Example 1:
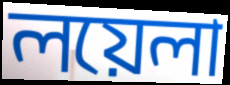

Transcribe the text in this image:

লয়েলা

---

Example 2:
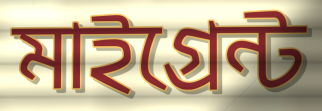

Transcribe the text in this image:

মাইগ্রেন্ট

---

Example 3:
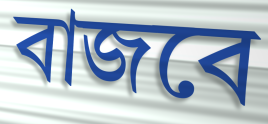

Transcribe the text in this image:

বাজবে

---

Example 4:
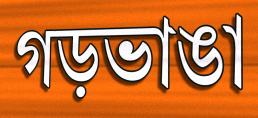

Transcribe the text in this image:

গড়ভাঙা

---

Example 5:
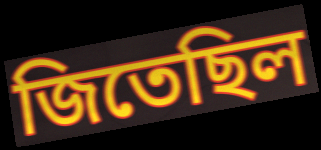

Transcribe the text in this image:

জিতেছিল